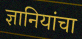
ज्ञानियांचा